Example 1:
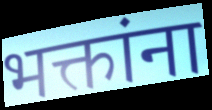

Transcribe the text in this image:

भक्तांना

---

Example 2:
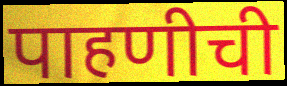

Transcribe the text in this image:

पाहणीची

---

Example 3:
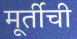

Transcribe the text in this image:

मूर्तीची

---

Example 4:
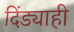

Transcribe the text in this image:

दिंड्याही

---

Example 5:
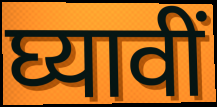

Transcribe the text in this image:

घ्यावीं